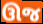
ઊજ